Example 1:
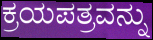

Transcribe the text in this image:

ಕ್ರಯಪತ್ರವನ್ನು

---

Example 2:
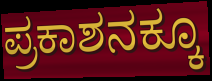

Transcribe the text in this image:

ಪ್ರಕಾಶನಕ್ಕೂ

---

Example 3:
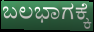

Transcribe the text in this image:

ಬಲಭಾಗಕ್ಕೆ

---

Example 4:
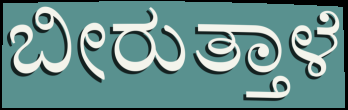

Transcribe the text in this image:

ಬೀರುತ್ತಾಳೆ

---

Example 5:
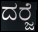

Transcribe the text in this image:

ದರ‍್ಜೆ